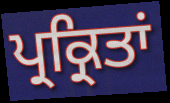
ਪ੍ਰਕ੍ਰਿਤਾਂ